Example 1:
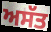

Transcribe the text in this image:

ਅਸੱਤ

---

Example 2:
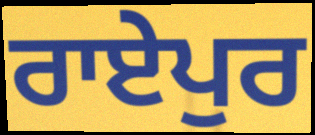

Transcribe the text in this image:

ਰਾਏਪੁਰ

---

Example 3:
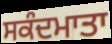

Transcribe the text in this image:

ਸਕੰਦਮਾਤਾ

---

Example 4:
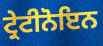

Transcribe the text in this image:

ਟ੍ਰੇਟੀਨੋਇਨ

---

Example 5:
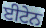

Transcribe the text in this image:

ਈਟੇਨ